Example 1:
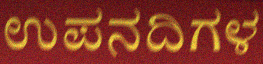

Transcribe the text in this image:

ಉಪನದಿಗಳ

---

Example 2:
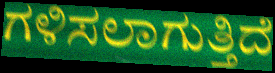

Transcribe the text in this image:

ಗಳಿಸಲಾಗುತ್ತಿದೆ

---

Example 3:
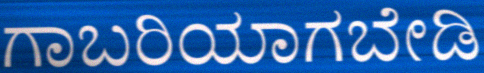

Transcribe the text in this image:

ಗಾಬರಿಯಾಗಬೇಡಿ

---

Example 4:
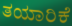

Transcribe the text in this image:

ತಯಾರಿಕೆ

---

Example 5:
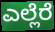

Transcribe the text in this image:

ಎಲ್ಲೆರೆ